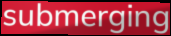
submerging